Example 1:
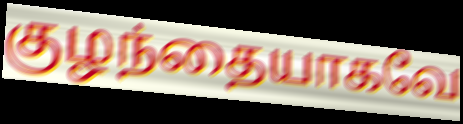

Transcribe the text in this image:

குழந்தையாகவே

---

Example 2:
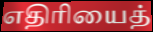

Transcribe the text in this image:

எதிரியைத்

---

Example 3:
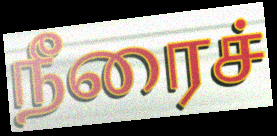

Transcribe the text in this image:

நீரைச்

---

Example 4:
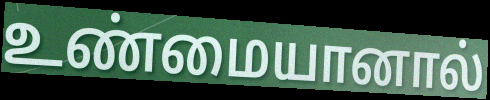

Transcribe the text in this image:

உண்மையானால்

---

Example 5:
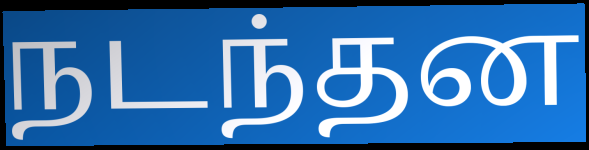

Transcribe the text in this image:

நடந்தன